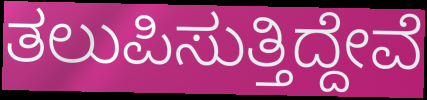
ತಲುಪಿಸುತ್ತಿದ್ದೇವೆ